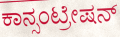
ಕಾನ್ಸಂಟ್ರೇಷನ್